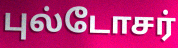
புல்டோசர்